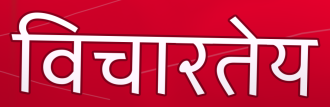
विचारतेय